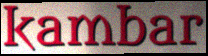
kambar